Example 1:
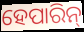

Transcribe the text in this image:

ହେପାରିନ୍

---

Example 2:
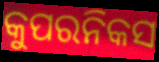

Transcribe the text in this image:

କୁପରନିକସ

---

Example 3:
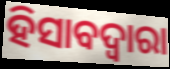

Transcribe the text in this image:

ହିସାବଦ୍ଵାରା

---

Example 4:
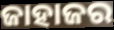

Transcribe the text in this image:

ଜାହାଜର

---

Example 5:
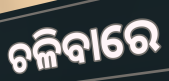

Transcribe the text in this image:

ଚଳିବାରେ